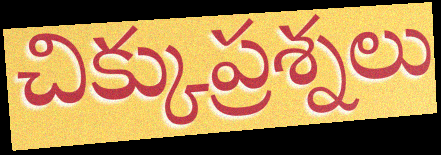
చిక్కుప్రశ్నలు